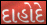
દાહોદે